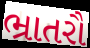
ભ્રાતરૌ